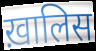
ख़ालिस